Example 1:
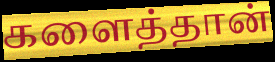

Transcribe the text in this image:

களைத்தான்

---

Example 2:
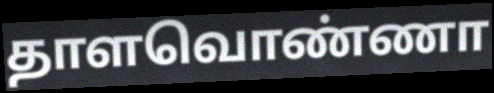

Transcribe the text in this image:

தாளவொண்ணா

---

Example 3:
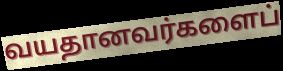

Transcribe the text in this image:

வயதானவர்களைப்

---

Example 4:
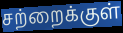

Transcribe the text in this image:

சற்றைக்குள்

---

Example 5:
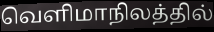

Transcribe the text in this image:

வெளிமாநிலத்தில்